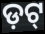
ଡ଼ଟ୍